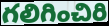
గలిగించిరి